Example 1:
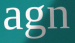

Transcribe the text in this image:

agn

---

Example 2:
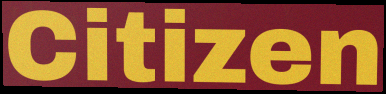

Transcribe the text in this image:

Citizen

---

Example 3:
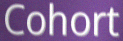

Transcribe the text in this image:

Cohort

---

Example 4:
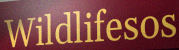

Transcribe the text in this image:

Wildlifesos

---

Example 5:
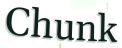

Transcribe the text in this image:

Chunk